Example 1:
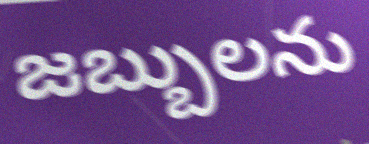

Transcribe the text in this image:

జబ్బులను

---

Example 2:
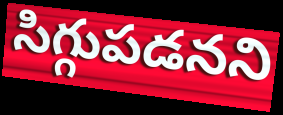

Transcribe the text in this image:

సిగ్గుపడనని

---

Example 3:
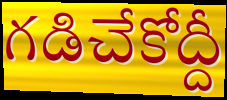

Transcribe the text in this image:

గడిచేకోద్దీ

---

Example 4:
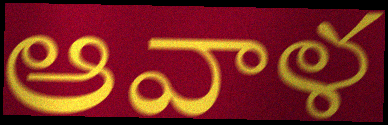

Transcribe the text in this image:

ఆవాళ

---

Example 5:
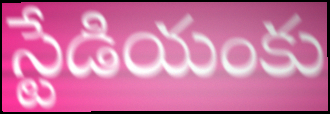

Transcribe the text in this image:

స్టేడియంకు